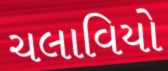
ચલાવિયો